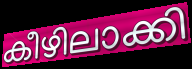
കീഴിലാക്കി